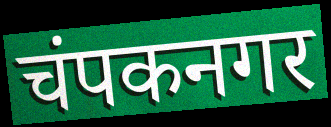
चंपकनगर